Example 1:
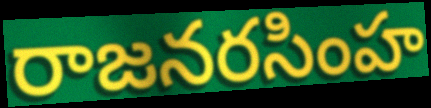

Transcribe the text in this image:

రాజనరసింహ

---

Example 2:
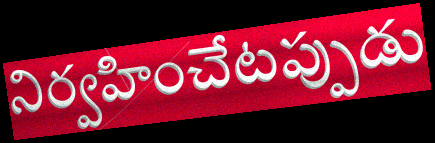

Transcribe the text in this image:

నిర్వహించేటప్పుడు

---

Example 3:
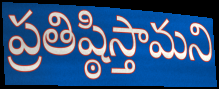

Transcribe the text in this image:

ప్రతిష్ఠిస్తామని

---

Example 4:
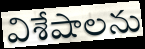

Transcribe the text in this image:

విశేషాలను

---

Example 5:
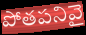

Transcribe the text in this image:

పోతపనివై